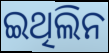
ଇଥିଲିନ